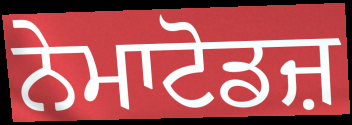
ਨੇਮਾਟੋਡਜ਼